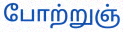
போற்றுஞ்